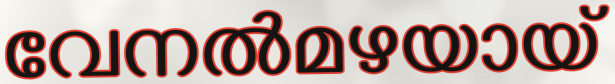
വേനൽമഴയായ്